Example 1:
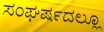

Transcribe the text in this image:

ಸಂಘರ್ಷದಲ್ಲೂ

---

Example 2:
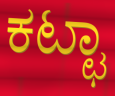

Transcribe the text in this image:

ಕಟ್ಟಾ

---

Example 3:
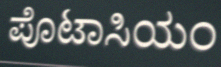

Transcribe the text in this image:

ಪೊಟಾಸಿಯಂ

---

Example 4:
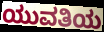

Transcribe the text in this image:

ಯುವತಿಯ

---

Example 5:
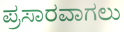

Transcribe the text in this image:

ಪ್ರಸಾರವಾಗಲು